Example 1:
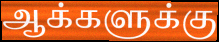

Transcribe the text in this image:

ஆக்களுக்கு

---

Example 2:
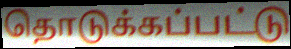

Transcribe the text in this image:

தொடுக்கப்பட்டு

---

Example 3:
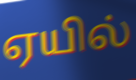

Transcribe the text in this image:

ஏயில்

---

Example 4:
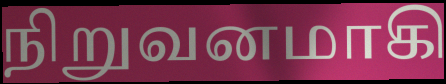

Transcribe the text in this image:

நிறுவனமாகி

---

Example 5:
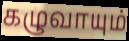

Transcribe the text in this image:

கழுவாயும்